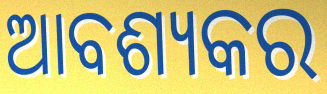
ଆବଶ୍ୟକର